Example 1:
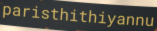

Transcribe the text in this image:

paristhithiyannu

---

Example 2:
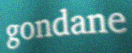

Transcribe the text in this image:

gondane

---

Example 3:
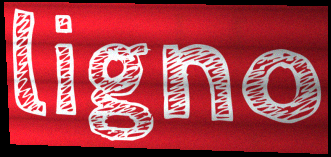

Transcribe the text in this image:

ligno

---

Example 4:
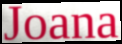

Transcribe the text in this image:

Joana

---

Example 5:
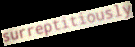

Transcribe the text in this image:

surreptitiously